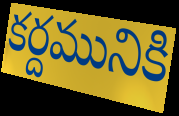
కర్దమునికి